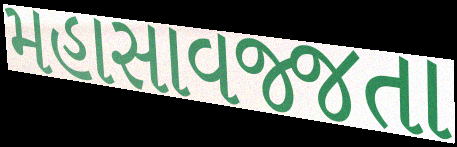
મહાસાવજ્જતા